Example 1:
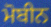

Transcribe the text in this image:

ਮੋਬੀਨ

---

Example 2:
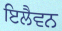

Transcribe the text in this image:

ਇਲੈਵਨ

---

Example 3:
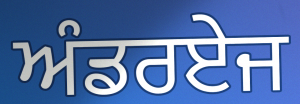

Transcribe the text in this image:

ਅੰਡਰਏਜ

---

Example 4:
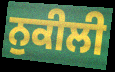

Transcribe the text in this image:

ਨੁਕੀਲੀ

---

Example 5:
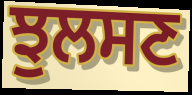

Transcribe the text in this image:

ਝੁਲਸਣ